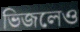
ভিজলেও